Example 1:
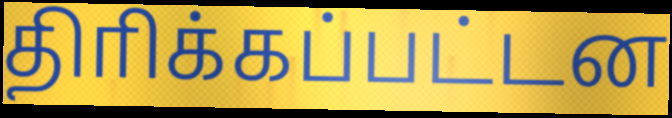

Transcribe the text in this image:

திரிக்கப்பட்டன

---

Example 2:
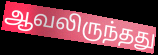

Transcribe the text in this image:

ஆவலிருந்தது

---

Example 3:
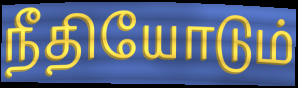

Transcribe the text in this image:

நீதியோடும்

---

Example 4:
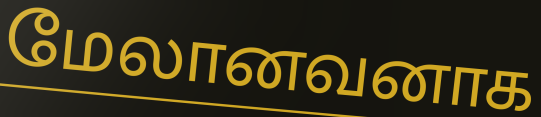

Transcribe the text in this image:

மேலானவனாக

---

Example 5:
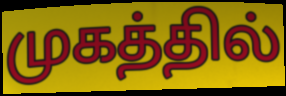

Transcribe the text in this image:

முகத்தில்